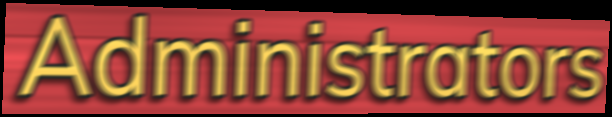
Administrators